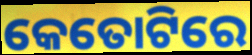
କେତୋଟିରେ